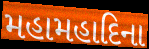
મહામહાદિના